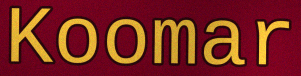
Koomar